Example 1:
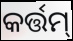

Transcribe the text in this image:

କର୍ତ୍ତମ୍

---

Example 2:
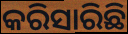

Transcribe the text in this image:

କରିସାରିଛି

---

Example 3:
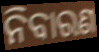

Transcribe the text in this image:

ନିବାରଣ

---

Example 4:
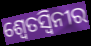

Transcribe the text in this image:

ଶ୍ୱେତସ୍ୱିନୀର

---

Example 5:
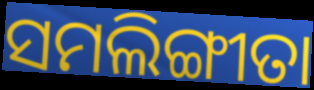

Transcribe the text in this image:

ସମଲିଙ୍ଗୀତା